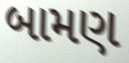
બામણ